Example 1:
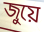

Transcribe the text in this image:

জুয়ে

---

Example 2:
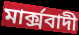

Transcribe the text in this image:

মাৰ্ক্সবাদী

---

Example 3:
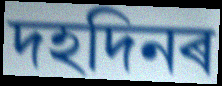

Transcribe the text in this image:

দহদিনৰ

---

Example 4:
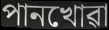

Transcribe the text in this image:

পানখোৱা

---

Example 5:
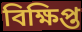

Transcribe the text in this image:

বিক্ষিপ্ত